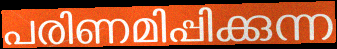
പരിണമിപ്പിക്കുന്ന